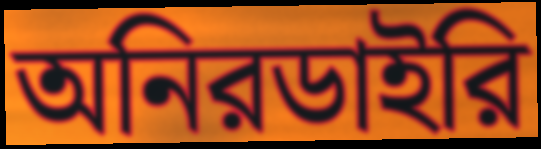
অনিরডাইরি